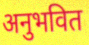
अनुभवित